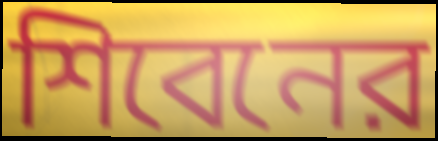
শিবেনের